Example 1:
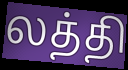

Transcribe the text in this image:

லத்தி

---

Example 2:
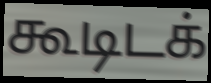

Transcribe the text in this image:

கூடிடக்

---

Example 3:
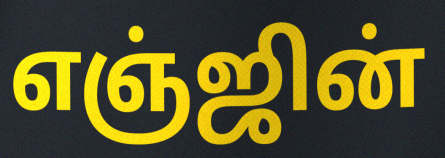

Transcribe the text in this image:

எஞ்ஜின்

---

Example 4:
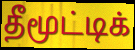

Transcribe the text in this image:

தீமூட்டிக்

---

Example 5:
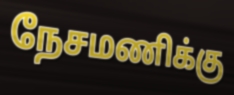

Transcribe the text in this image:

நேசமணிக்கு